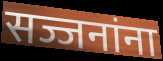
सज्जनांना